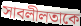
সাবলীলতাকে